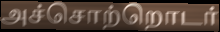
அச்சொற்றொடர்